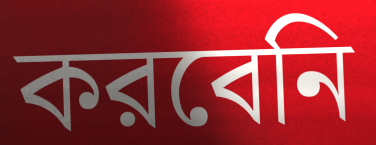
করবেনি